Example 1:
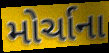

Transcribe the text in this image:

મોર્ચાના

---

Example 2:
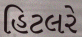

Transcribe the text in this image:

હિટલરે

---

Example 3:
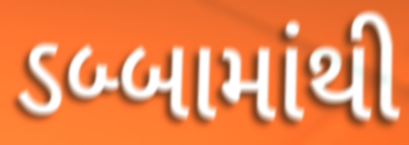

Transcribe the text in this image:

ડબ્બામાંથી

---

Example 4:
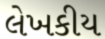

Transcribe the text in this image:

લેખકીય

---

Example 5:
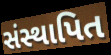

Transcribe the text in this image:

સંસ્થાપિત